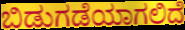
ಬಿಡುಗಡೆಯಾಗಲಿದೆ